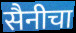
सैनीचा